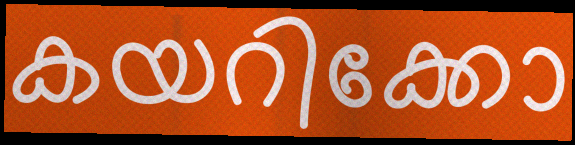
കയറിക്കോ